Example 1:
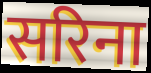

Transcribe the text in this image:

सरिना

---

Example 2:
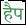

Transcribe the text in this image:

हैप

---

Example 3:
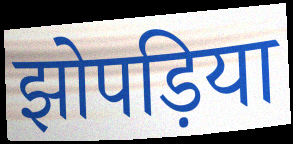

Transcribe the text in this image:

झोपड़िया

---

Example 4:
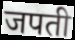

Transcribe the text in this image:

जपती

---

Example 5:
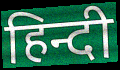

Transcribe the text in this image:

हिन्दी